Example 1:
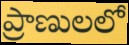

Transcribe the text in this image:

ప్రాణులలో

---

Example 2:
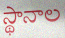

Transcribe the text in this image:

స్థానాల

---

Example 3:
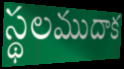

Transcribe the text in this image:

స్థలముదాక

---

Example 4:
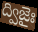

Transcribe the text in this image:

ద్విజైః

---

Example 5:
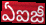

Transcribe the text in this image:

ఏఐజీ